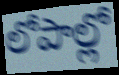
లోపాల్లో